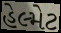
હેલ્મેટ